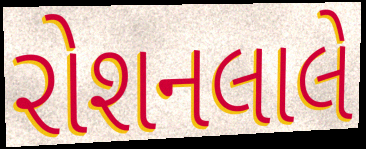
રોશનલાલે